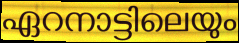
ഏറനാട്ടിലെയും